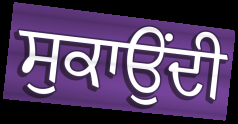
ਸੁਕਾਉਂਦੀ